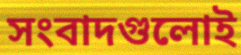
সংবাদগুলোই